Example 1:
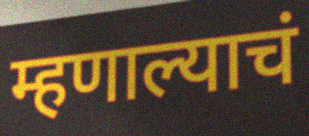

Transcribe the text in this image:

म्हणाल्याचं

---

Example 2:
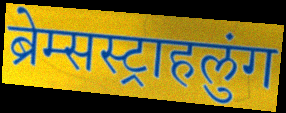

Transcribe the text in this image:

ब्रेम्सस्ट्राहलुंग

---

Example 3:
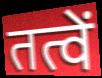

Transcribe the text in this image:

तत्वें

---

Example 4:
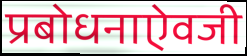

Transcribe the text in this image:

प्रबोधनाऐवजी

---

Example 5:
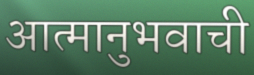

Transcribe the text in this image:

आत्मानुभवाची